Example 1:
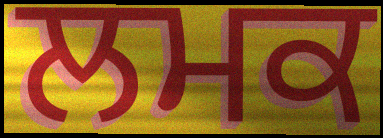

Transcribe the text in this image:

ਲਮਕ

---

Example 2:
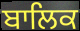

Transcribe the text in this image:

ਬਾਲਿਕ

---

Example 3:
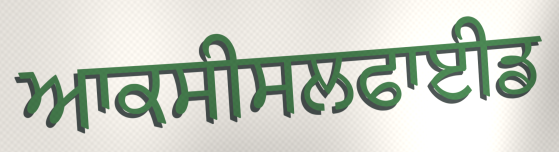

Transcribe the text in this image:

ਆਕਸੀਸਲਫਾਈਡ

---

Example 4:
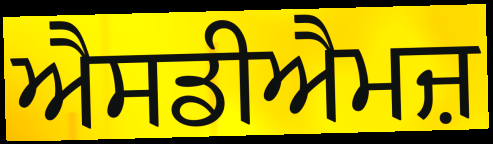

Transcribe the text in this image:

ਐਸਡੀਐਮਜ਼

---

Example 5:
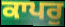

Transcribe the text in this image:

ਕਾਪਰੁ